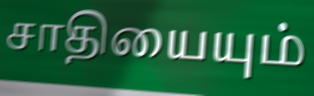
சாதியையும்